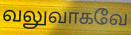
வலுவாகவே